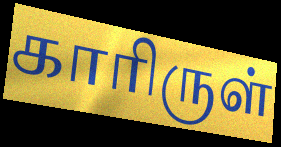
காரிருள்